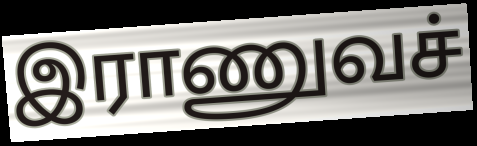
இராணுவச்